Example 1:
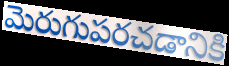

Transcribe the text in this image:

మెరుగుపరచడానికి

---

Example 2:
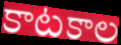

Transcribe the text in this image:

కాటకాల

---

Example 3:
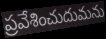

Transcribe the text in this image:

ప్రవేశించుదుమను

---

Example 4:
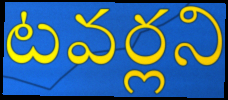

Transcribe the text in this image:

టవర్లని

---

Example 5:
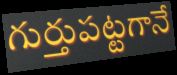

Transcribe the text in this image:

గుర్తుపట్టగానే